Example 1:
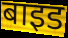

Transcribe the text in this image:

बाइड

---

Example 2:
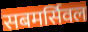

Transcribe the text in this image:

सबमर्सिवल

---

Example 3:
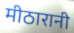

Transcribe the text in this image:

मीठारानी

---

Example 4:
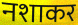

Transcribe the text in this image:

नशाकर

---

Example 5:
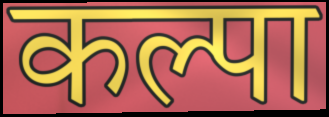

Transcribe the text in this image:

कल्पा